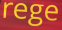
rege